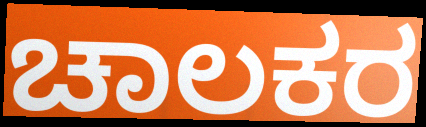
ಚಾಲಕರ